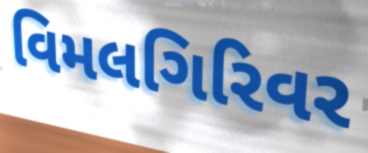
વિમલગિરિવર